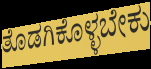
ತೊಡಗಿಕೊಳ್ಳಬೇಕು